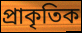
প্ৰাকৃতিক